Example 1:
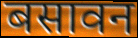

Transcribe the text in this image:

बसावन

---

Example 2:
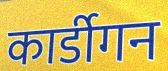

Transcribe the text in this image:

कार्डीगन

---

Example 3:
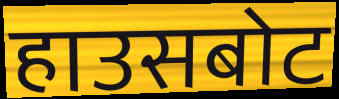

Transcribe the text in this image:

हाउसबोट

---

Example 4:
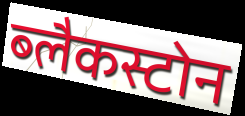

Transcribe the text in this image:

ब्‍लैकस्‍टोन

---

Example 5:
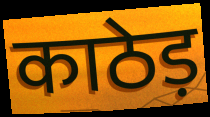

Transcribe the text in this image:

काठेड़